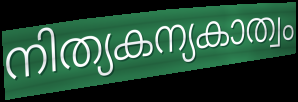
നിത്യകന്യകാത്വം